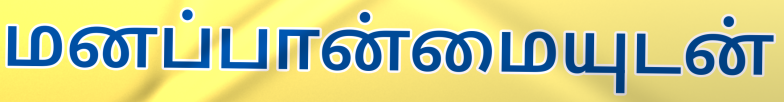
மனப்பான்மையுடன்